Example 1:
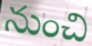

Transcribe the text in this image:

నుంచి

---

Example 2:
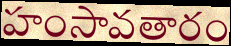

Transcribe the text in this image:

హంసావతారం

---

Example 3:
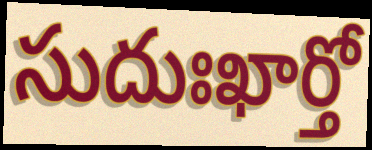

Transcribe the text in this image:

సుదుఃఖార్తో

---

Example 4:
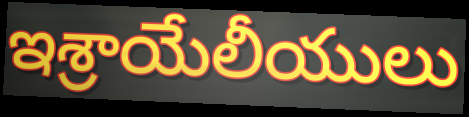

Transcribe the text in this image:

ఇశ్రాయేలీయులు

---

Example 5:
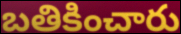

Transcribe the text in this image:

బతికించారు